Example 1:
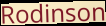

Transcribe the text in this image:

Rodinson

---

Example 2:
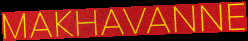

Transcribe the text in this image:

MAKHAVANNE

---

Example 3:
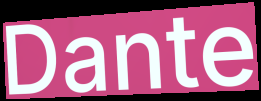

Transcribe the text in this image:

Dante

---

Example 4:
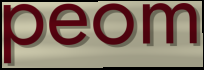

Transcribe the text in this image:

peom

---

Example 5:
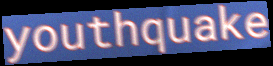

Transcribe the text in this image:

youthquake